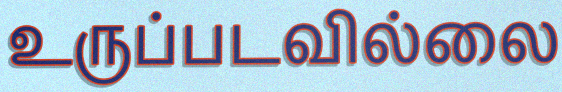
உருப்படவில்லை